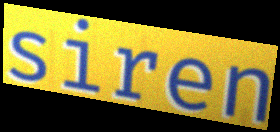
siren